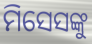
ମିସେସଙ୍କୁ